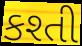
કશ્તી